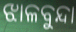
ଝାଳବୁନ୍ଦା